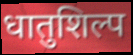
धातुशिल्प